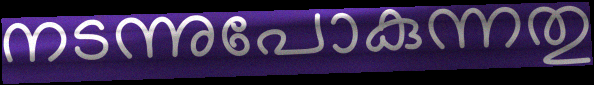
നടന്നുപോകുന്നതു